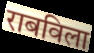
राबविला